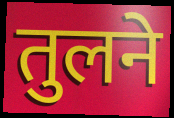
तुलने